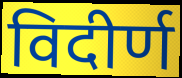
विदीर्ण